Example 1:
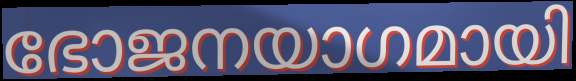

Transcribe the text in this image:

ഭോജനയാഗമായി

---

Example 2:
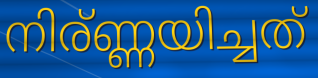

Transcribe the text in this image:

നിര്ണ്ണയിച്ചത്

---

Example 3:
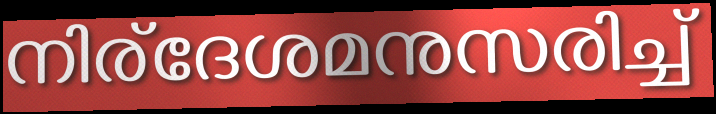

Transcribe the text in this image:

നിര്ദേശമനുസരിച്ച്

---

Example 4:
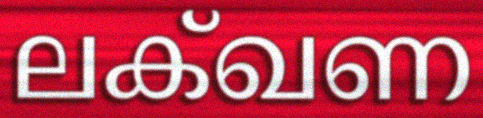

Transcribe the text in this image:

ലക്ഖണ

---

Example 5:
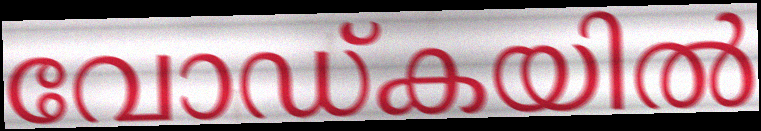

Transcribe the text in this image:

വോഡ്കയിൽ